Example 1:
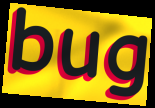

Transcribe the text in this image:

bug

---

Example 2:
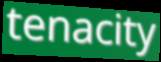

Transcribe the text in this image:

tenacity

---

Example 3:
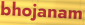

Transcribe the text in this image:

bhojanam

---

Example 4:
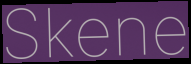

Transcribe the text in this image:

Skene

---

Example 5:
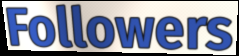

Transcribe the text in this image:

Followers